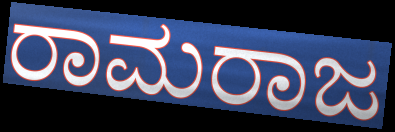
ರಾಮರಾಜ